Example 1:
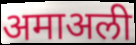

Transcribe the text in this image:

अमाअली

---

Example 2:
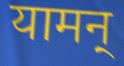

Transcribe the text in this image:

यामन्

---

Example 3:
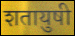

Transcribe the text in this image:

शतायुषी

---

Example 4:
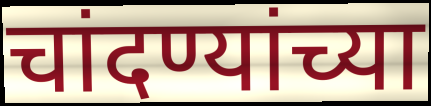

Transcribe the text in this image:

चांदण्यांच्या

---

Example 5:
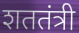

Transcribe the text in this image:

शततंत्री